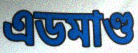
এডমাণ্ড